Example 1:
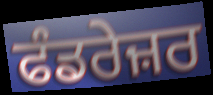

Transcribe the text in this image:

ਫੰਡਰੇਜ਼ਰ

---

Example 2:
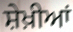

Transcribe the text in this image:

ਸ਼ੇਖ਼ੀਆਂ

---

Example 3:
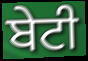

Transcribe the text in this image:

ਬੇਟੀ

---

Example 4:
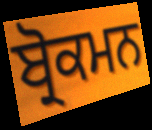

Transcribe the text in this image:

ਬ੍ਰੋਕਮਨ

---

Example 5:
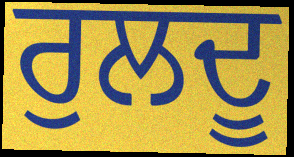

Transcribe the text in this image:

ਰੁਲਦੂ